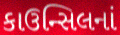
કાઉન્સિલનાં